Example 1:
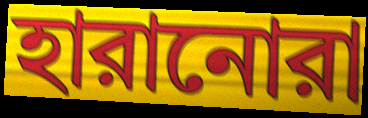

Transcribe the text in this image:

হারানোরা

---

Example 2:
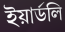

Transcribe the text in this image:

ইয়ার্ডলি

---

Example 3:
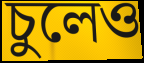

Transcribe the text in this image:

চুলেও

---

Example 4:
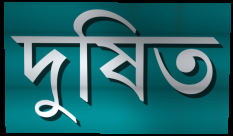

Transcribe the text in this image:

দুষিত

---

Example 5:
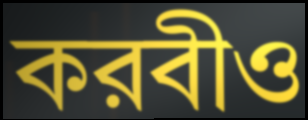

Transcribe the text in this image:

করবীও